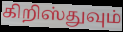
கிறிஸ்துவும்